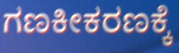
ಗಣಕೀಕರಣಕ್ಕೆ